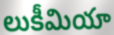
లుకీమియా